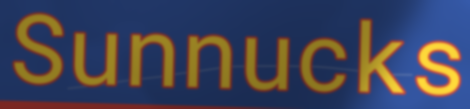
Sunnucks